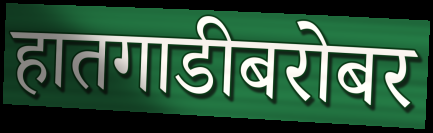
हातगाडीबरोबर